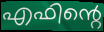
എഫിന്റെ